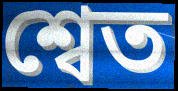
শ্বেত